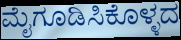
ಮೈಗೂಡಿಸಿಕೊಳ್ಳದ